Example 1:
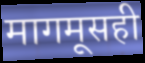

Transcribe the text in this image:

मागमूसही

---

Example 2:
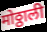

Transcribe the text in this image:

मोठ्ठाली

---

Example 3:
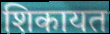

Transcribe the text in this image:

शिकायत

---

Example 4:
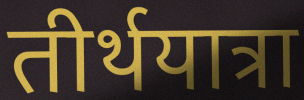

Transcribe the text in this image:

तीर्थयात्रा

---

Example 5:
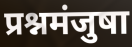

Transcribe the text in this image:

प्रश्नमंजुषा